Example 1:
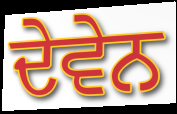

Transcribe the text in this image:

ਦੇਵੇਨ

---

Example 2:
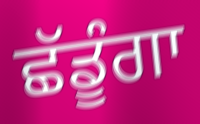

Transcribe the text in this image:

ਛੱਡੂੰਗਾ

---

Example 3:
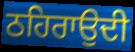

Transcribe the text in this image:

ਠਹਿਰਾਉਦੀ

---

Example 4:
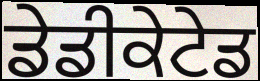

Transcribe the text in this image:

ਡੇਡੀਕੇਟੇਡ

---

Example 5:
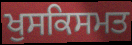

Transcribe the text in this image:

ਖੁਸਕਿਸਮਤ